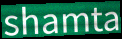
shamta